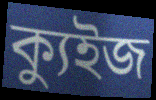
ক্যুইজ